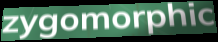
zygomorphic